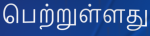
பெற்றுள்ளது